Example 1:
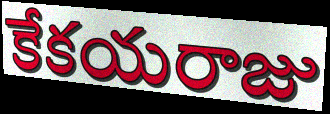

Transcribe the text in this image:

కేకయరాజు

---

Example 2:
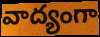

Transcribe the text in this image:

వాద్యంగా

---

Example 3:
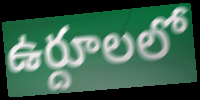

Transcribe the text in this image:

ఉర్దూలలో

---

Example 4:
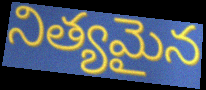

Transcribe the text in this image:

నిత్యమైన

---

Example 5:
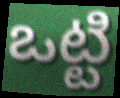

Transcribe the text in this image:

ఒట్టి